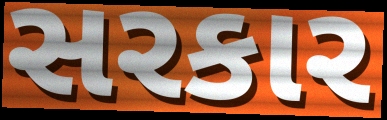
સરકાર